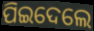
ପିଇଦେଲେ